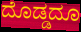
ದೊಡ್ಡದೂ